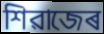
শিৱাজেৰ